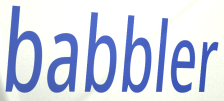
babbler